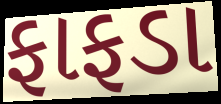
ફાફડા